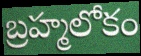
బ్రహ్మలోకం